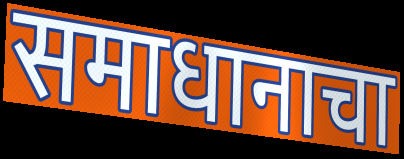
समाधानाचा